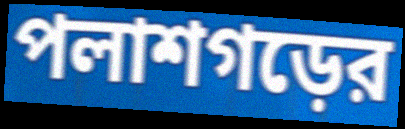
পলাশগড়ের